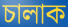
চালাক